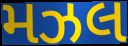
મઝલ